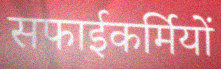
सफाईकर्मियों